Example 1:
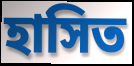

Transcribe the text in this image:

হাসিত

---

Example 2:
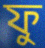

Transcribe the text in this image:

ফু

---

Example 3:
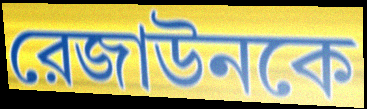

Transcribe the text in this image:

রেজাউনকে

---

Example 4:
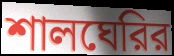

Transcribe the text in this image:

শালঘেরির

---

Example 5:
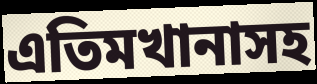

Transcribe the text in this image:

এতিমখানাসহ